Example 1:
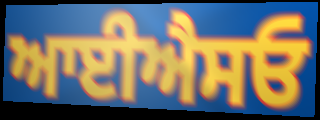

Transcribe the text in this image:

ਆਈਐਸਓ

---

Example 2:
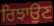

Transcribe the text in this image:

ਰਿਝਾਉਣ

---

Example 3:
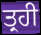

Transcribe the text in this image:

ਤ੍ਰਹੀ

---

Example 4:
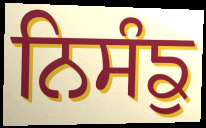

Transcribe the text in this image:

ਨਿਸੰਙੁ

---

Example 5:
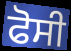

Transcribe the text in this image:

ਫੋਸੀ